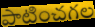
పాటించగల